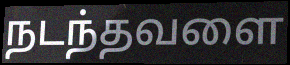
நடந்தவளை